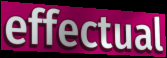
effectual